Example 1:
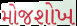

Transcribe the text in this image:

મોજશોખ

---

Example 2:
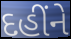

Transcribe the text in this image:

દહીંને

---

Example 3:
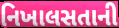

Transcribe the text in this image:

નિખાલસતાની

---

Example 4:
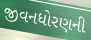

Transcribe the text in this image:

જીવનધોરણની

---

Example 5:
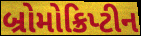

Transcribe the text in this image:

બ્રોમોક્રિપ્ટીન